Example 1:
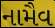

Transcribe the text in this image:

નામૈવ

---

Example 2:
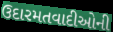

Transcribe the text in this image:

ઉદારમતવાદીઓની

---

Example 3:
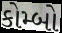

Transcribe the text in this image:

કોમ્બો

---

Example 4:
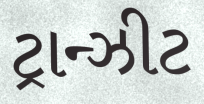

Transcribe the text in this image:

ટ્રાન્ઝીટ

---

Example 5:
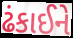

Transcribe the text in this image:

ઢંકાઈને